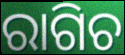
ରାଗିଚ